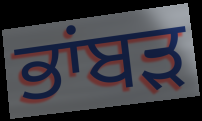
ਭਾਂਬੜ